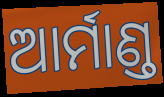
ଆର୍ମାଣ୍ଡ